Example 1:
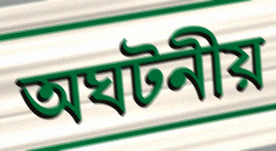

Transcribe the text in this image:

অঘটনীয়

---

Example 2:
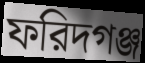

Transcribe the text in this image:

ফরিদগঞ্জ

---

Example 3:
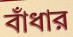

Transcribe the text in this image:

বাঁধার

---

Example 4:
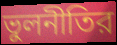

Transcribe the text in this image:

ভুলনীতির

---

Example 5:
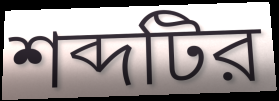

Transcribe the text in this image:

শব্দটির